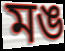
মঙ